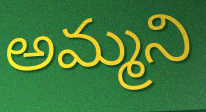
అమ్మని